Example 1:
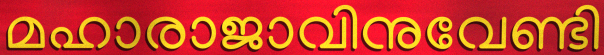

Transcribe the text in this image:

മഹാരാജാവിനുവേണ്ടി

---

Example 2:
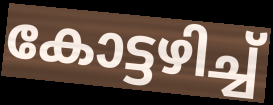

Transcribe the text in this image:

കോട്ടഴിച്ച്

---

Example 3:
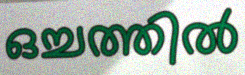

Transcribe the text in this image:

ഒച്ചത്തിൽ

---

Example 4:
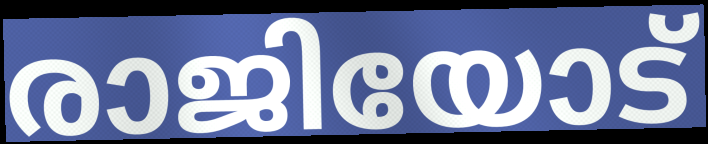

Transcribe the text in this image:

രാജിയോട്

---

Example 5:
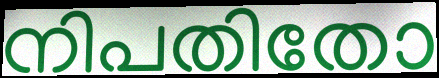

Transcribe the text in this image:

നിപതിതോ